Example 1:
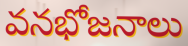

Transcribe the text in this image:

వనభోజనాలు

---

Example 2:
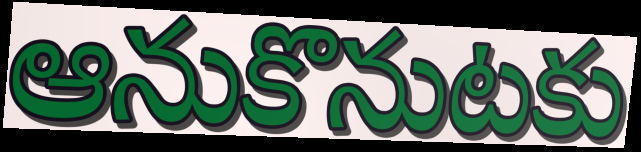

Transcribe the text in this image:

ఆనుకొనుటకు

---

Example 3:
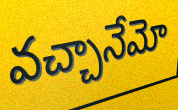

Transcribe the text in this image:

వచ్చానేమో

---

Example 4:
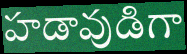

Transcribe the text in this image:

హడావుడిగా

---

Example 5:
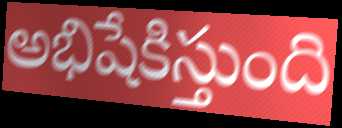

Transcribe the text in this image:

అభిషేకిస్తుంది